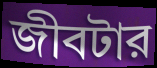
জীবটার